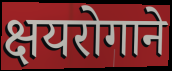
क्षयरोगाने